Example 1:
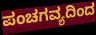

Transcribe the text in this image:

ಪಂಚಗವ್ಯದಿಂದ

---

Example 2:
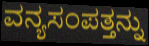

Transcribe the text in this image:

ವನ್ಯಸಂಪತ್ತನ್ನು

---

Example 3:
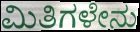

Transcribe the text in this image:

ಮಿತಿಗಳೇನು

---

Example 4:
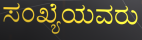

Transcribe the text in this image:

ಸಂಖ್ಯೆಯವರು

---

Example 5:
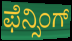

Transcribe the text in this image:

ಫೆನ್ಸಿಂಗ್